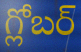
గ్లోబర్